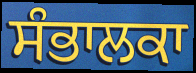
ਸੰਭਾਲਕਾ